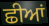
ਛੀਆਂ